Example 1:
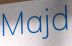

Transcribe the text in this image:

Majd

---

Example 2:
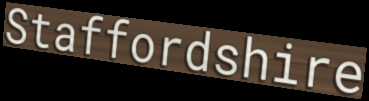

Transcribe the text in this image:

Staffordshire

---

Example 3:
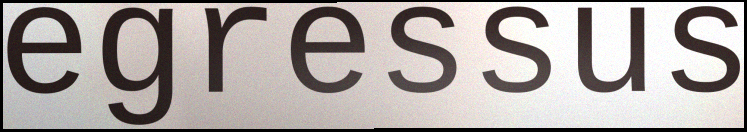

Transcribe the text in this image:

egressus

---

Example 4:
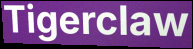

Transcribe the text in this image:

Tigerclaw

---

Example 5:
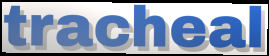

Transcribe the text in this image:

tracheal